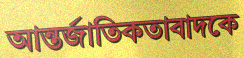
আন্তর্জাতিকতাবাদকে